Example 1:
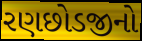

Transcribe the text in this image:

રણછોડજીનો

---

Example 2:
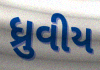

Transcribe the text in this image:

ધ્રુવીય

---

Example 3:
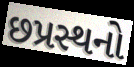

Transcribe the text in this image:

છપ્રસ્થનો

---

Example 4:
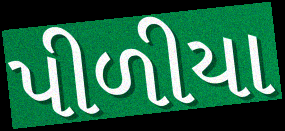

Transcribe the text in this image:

પીળીયા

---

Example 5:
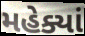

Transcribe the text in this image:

મહેક્યાં